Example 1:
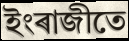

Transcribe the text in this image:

ইংৰাজীতে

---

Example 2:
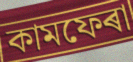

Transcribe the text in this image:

কামফেৰা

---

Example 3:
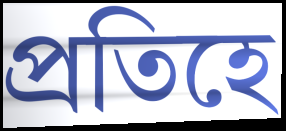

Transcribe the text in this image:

প্ৰতিহে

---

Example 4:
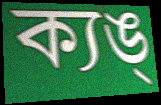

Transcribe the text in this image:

ক্যঙ্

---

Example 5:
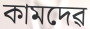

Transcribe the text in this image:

কামদেৱ